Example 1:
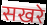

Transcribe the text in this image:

सखरे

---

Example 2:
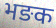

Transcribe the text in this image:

भङक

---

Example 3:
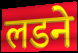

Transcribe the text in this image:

लडने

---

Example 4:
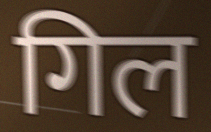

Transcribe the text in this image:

गिल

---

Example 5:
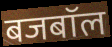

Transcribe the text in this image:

बजबॉल